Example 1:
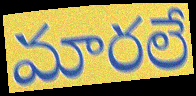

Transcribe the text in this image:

మారలే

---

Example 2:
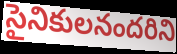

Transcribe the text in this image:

సైనికులనందరిని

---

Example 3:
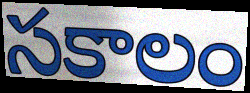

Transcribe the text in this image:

సకాలం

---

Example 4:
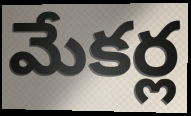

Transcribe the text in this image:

మేకర్ల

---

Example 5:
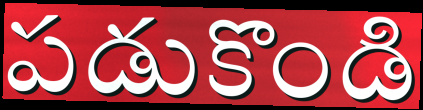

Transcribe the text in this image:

పడుకొండి